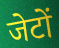
जेटों